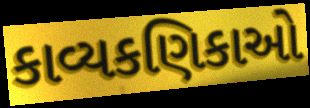
કાવ્યકણિકાઓ